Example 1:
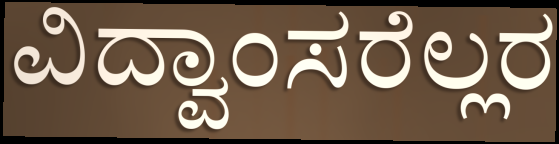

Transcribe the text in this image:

ವಿದ್ವಾಂಸರೆಲ್ಲರ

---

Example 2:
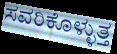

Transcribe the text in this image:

ಸವರಿಕೊಳ್ಳುತ್ತ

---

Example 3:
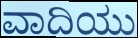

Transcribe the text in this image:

ವಾದಿಯು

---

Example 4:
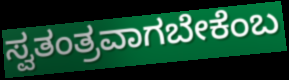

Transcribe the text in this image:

ಸ್ವತಂತ್ರವಾಗಬೇಕೆಂಬ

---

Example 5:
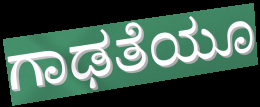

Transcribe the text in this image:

ಗಾಢತೆಯೂ